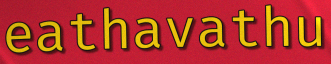
eathavathu